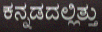
ಕನ್ನಡದಲ್ಲಿತ್ತು